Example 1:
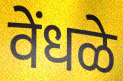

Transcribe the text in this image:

वेंधळे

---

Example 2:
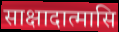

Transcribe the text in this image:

साक्षादात्मासि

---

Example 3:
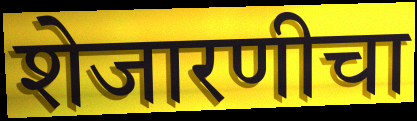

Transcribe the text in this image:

शेजारणीचा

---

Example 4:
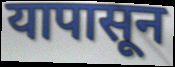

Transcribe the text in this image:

यापासून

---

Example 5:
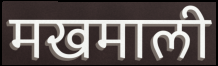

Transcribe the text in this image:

मखमाली